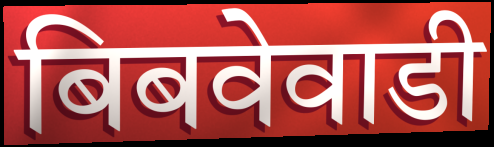
बिबवेवाडी